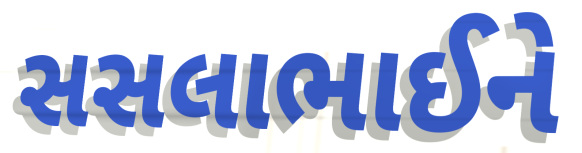
સસલાભાઈને